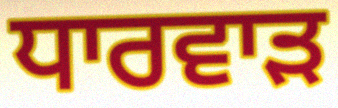
ਧਾਰਵਾੜ